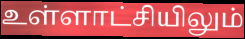
உள்ளாட்சியிலும்